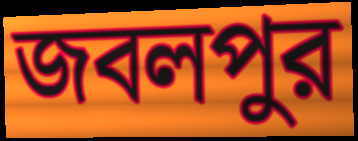
জবলপুর